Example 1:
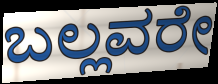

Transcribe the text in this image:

ಬಲ್ಲವರೇ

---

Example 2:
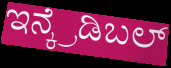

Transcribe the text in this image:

ಇನ್ಕ್ರೆಡಿಬಲ್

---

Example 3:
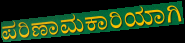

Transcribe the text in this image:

ಪರಿಣಾಮಕಾರಿಯಾಗಿ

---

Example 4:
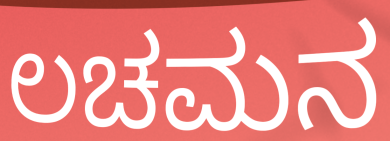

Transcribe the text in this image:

ಲಚಮನ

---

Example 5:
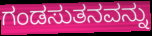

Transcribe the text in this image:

ಗಂಡಸುತನವನ್ನು